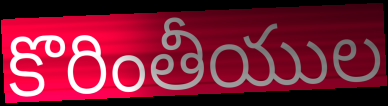
కొరింతీయుల